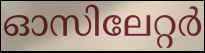
ഓസിലേറ്റർ